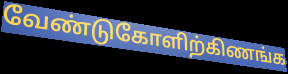
வேண்டுகோளிற்கிணங்க